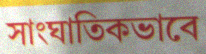
সাংঘাতিকভাবে